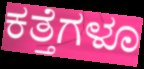
ಕತ್ತೆಗಳೂ